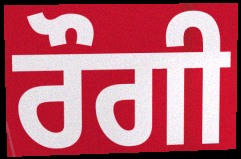
ਰੌਗੀ